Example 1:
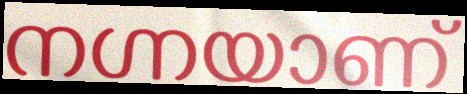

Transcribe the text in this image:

നഗ്നയാണ്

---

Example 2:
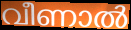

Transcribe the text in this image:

വീണാൽ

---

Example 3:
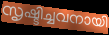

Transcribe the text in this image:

സൃഷ്ടിച്ചവനായി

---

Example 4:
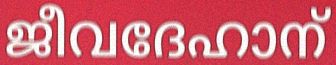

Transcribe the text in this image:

ജീവദേഹാന്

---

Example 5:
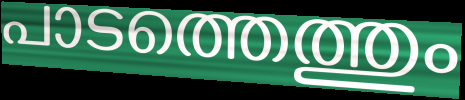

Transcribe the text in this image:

പാടത്തെത്തും